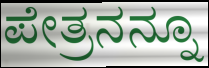
ಪೇತ್ರನನ್ನೂ